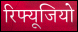
रिफ्यूजियो